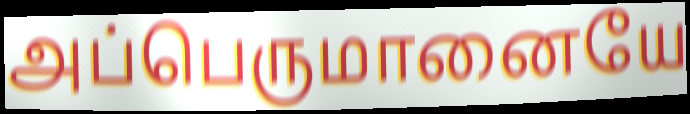
அப்பெருமானையே